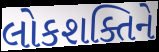
લોકશક્તિને